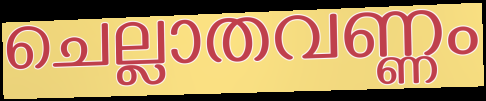
ചെല്ലാതവണ്ണം